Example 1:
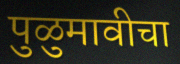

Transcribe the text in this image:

पुळुमावीचा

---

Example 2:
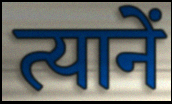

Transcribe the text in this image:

त्यानें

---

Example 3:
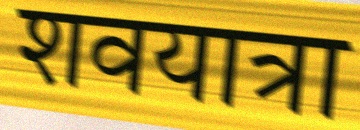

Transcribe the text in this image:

शवयात्रा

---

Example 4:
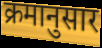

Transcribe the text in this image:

क्रमानुसार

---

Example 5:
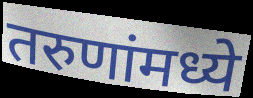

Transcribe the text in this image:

तरुणांमध्ये